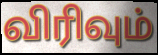
விரிவும்